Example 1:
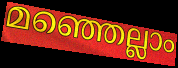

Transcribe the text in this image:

മഞ്ഞെല്ലാം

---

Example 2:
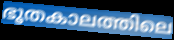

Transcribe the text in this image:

ഭൂതകാലത്തിലെ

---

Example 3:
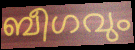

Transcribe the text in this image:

ബീഗവും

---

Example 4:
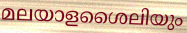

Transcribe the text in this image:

മലയാളശൈലിയും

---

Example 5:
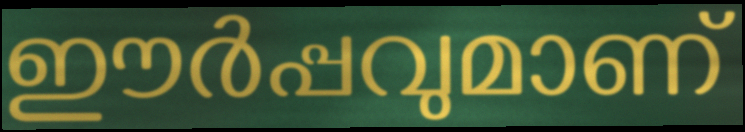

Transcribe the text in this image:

ഈർപ്പവുമാണ്